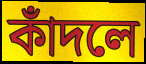
কাঁদলে